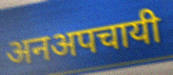
अनअपचायी